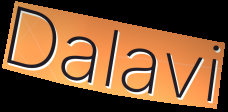
Dalavi